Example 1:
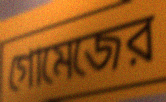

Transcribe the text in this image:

গোমেজের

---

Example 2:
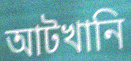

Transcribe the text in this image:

আটখানি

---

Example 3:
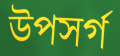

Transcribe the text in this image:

উপসর্গ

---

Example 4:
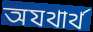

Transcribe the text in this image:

অযথার্থ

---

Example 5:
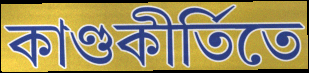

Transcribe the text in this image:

কাণ্ডকীর্তিতে